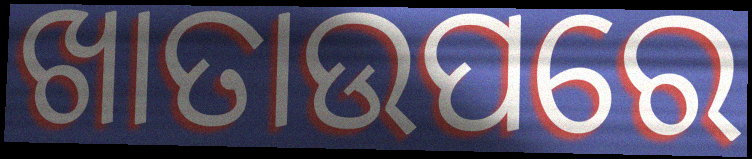
ଖାତାଉପରେ